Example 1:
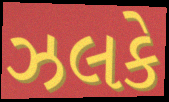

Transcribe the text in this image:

ઝલકે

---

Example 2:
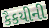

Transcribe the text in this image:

કૈકયીની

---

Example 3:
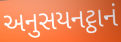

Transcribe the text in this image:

અનુસયનટ્ઠાનં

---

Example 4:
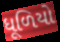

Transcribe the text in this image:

ધૂળિયો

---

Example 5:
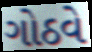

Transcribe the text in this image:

ગોઠવે